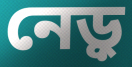
নেড়ু